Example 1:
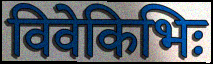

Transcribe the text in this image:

विवेकिभिः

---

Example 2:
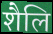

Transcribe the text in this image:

शैलि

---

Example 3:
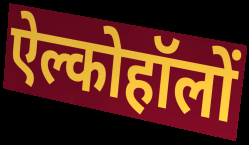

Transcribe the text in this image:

ऐल्कोहॉलों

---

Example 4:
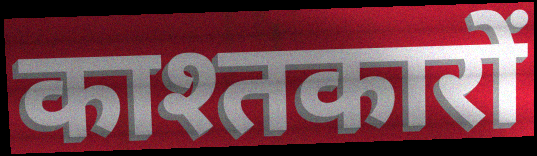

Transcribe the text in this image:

काश्तकारों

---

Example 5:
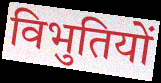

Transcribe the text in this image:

विभुतियों